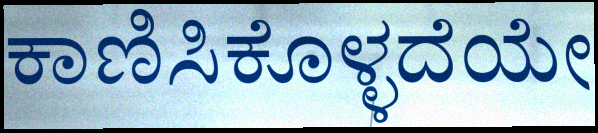
ಕಾಣಿಸಿಕೊಳ್ಳದೆಯೇ